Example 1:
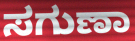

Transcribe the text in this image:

ಸಗುಣಾ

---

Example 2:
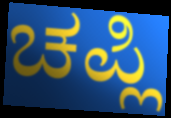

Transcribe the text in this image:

ಚಪ್ಲಿ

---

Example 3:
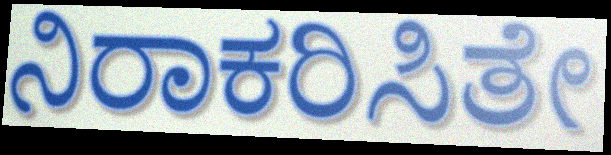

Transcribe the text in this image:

ನಿರಾಕರಿಸಿತೇ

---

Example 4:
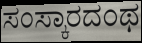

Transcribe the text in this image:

ಸಂಸ್ಕಾರದಂಥ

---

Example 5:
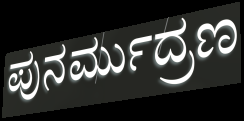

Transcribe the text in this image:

ಪುನರ್ಮುದ್ರಣ